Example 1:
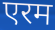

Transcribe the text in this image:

एरम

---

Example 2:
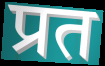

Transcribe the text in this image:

प्रत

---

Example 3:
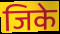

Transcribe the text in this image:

जिके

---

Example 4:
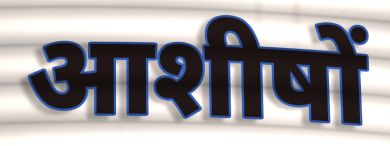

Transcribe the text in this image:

आशीषों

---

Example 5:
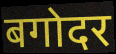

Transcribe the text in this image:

बगोदर